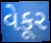
વેકૂર